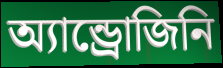
অ্যান্ড্রোজিনি